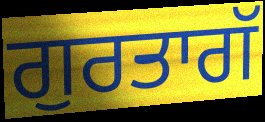
ਗੁਰਤਾਗੱ